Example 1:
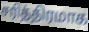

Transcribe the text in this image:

சரித்திரமாக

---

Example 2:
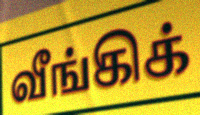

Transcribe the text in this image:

வீங்கிக்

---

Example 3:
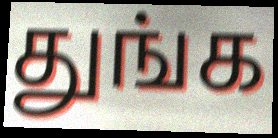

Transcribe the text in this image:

துங்க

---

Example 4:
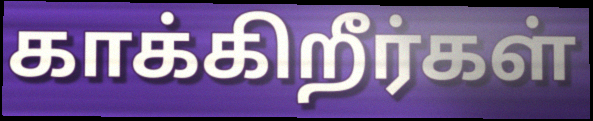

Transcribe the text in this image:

காக்கிறீர்கள்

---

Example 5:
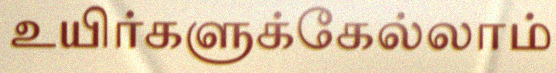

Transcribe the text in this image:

உயிர்களுக்கேல்லாம்